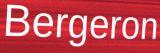
Bergeron